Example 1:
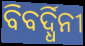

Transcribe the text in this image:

ବିବର୍ଦ୍ଧିନୀ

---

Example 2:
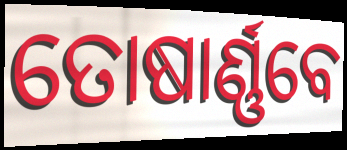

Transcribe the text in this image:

ତୋଷାର୍ଣ୍ଣବେ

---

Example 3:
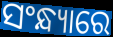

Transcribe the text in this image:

ସଂନ୍ଧ୍ଯାରେ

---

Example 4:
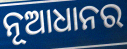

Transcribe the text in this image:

ନୂଆଧାନର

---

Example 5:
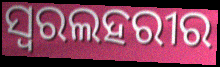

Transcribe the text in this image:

ସ୍ୱରଲହରୀର